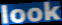
look